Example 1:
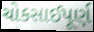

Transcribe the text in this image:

ચોકસાઈપૂર્ણ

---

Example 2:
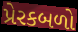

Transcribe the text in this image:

પ્રેરકબળો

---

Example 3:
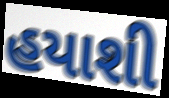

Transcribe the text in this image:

હયાશી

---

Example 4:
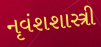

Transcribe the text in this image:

નૃવંશશાસ્ત્રી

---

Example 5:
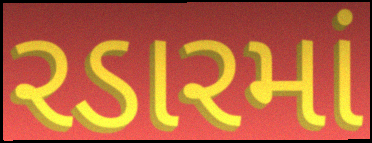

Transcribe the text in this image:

રડારમાં